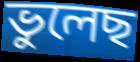
ভুলেছ